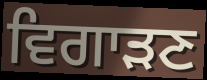
ਵਿਗਾੜਣ